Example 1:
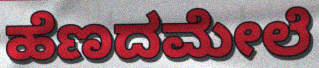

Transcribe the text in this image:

ಹೆಣದಮೇಲೆ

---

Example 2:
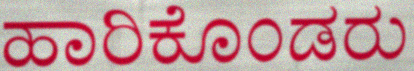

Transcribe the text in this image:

ಹಾರಿಕೊಂಡರು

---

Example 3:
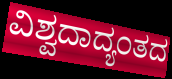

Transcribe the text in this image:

ವಿಶ್ವದಾದ್ಯಂತದ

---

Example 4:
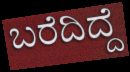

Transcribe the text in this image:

ಬರೆದಿದ್ದೆ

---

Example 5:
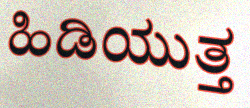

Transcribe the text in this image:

ಹಿಡಿಯುತ್ತ